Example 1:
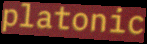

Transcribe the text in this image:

platonic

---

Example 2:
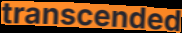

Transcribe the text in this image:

transcended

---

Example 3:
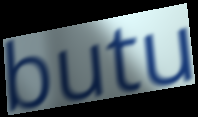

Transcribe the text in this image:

butu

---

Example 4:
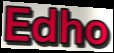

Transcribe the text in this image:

Edho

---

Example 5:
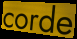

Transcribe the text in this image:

corde